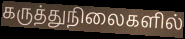
கருத்துநிலைகளில்